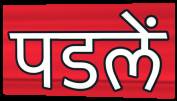
पडलें